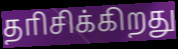
தரிசிக்கிறது